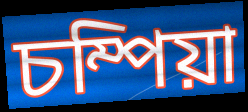
চম্পিয়া